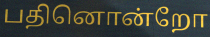
பதினொன்றோ